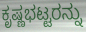
ಕೃಷ್ಣಭಟ್ಟರನ್ನು